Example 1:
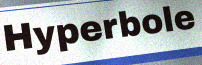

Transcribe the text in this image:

Hyperbole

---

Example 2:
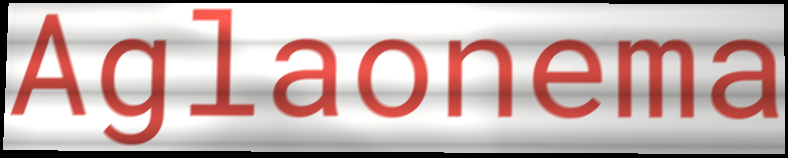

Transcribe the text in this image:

Aglaonema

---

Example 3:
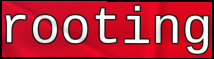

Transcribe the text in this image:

rooting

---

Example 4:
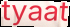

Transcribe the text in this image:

tyaat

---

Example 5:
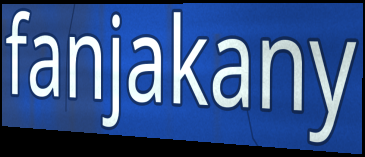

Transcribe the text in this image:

fanjakany